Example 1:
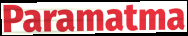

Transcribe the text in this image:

Paramatma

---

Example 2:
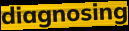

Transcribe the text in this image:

diagnosing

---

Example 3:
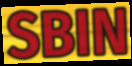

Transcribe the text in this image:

SBIN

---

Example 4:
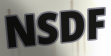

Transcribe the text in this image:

NSDF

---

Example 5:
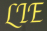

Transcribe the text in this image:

LIE